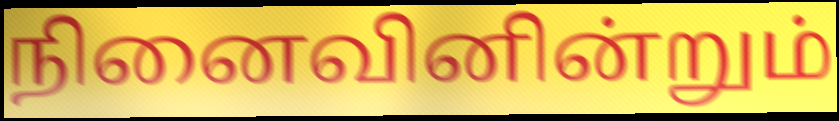
நினைவினின்றும்